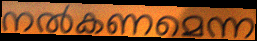
നൽകണമെന്ന